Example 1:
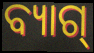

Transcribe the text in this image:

ବ୍ୟାଗ୍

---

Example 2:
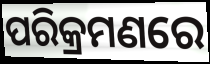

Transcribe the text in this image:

ପରିକ୍ରମଣରେ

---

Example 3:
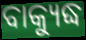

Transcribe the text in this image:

ବାକ୍ଯୁଦ୍ଧ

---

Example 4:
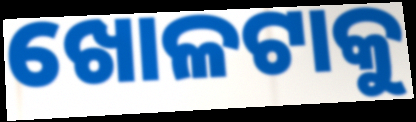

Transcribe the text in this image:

ଖୋଳଟାକୁ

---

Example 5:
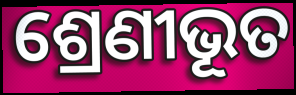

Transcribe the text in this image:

ଶ୍ରେଣୀଭୂତ